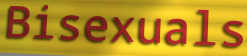
Bisexuals